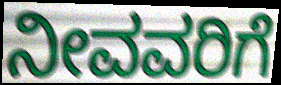
ನೀವವರಿಗೆ